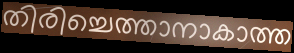
തിരിച്ചെത്താനാകാത്ത